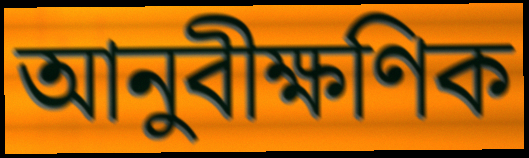
আনুবীক্ষণিক